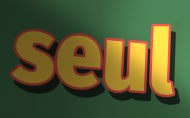
seul